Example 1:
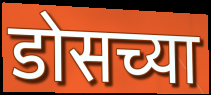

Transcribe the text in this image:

डोसच्या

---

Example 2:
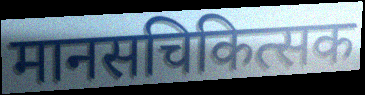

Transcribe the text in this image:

मानसचिकित्सक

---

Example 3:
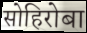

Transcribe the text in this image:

सोहिरोबा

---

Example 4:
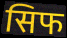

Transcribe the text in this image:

सिफ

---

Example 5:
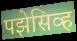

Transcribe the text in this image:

पझेसिव्ह